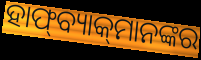
ହାଫ୍‍ବ୍ୟାକ୍‍ମାନଙ୍କର